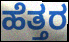
ಹೆತ್ತರ